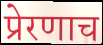
प्रेरणाच